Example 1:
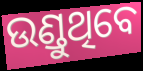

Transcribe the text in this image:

ଉଣ୍ଡୁଥିବେ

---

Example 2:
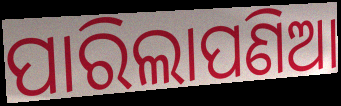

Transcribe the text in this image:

ପାରିଲାପଣିଆ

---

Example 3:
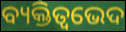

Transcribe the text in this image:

ବ୍ୟକ୍ତିତ୍ୱଭେଦ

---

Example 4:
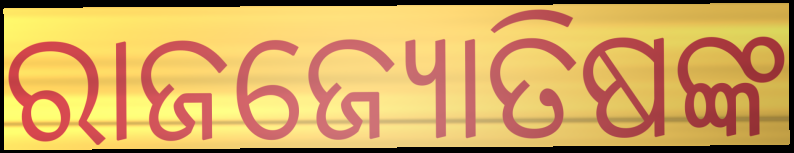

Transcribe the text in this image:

ରାଜଜ୍ୟୋତିଷଙ୍କ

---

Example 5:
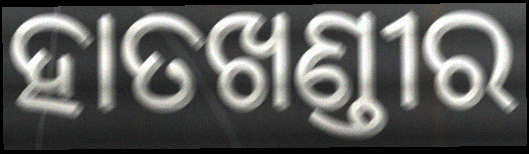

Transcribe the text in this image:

ହାତଖଣ୍ଡୀର